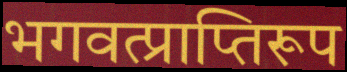
भगवत्प्राप्तिरूप